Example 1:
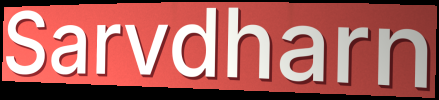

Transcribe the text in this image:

Sarvdharn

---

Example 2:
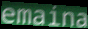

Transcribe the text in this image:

emaina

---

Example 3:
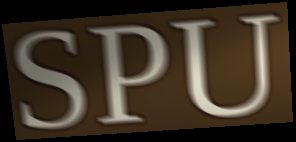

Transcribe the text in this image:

SPU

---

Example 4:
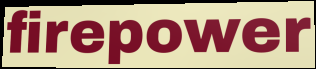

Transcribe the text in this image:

firepower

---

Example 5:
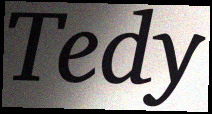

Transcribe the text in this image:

Tedy